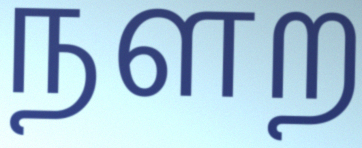
நளற